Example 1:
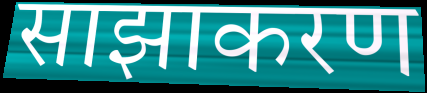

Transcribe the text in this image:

साझाकरण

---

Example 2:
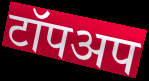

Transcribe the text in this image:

टॉपअप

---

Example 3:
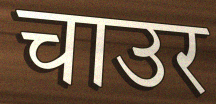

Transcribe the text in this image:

चाउर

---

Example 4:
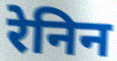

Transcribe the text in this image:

रेनिन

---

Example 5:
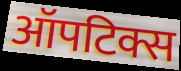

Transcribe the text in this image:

ऑपटिक्स